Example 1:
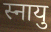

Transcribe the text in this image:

स्नायु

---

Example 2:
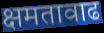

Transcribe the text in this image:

क्षमतावाढ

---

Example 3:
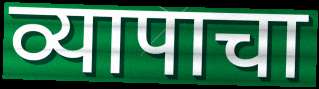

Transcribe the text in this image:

व्यापाचा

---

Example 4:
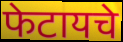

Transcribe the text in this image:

फेटायचे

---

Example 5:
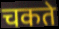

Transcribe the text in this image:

चकते